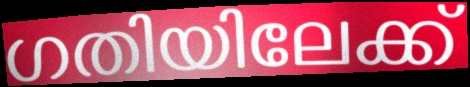
ഗതിയിലേക്ക്